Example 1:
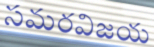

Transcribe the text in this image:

సమరవిజయ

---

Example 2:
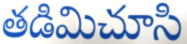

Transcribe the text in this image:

తడిమిచూసి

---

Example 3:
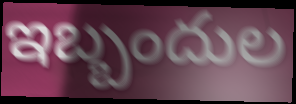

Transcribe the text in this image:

ఇబ్బందుల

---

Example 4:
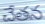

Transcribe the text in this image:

చేతన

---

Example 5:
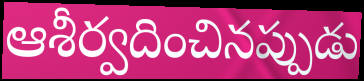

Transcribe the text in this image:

ఆశీర్వదించినప్పుడు